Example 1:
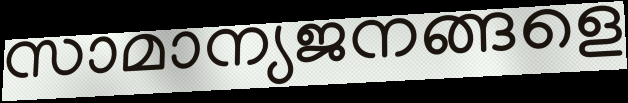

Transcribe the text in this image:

സാമാന്യജനങ്ങളെ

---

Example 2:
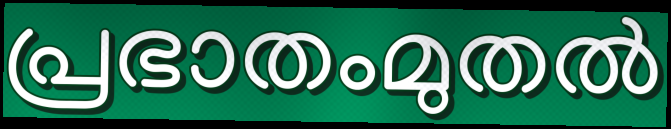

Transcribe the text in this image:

പ്രഭാതംമുതൽ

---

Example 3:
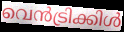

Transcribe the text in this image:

വെൻട്രിക്കിൾ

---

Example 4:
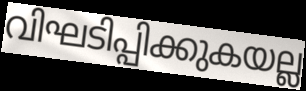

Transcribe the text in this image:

വിഘടിപ്പിക്കുകയല്ല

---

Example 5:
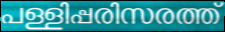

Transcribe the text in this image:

പള്ളിപ്പരിസരത്ത്